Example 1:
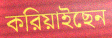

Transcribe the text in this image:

করিয়াইছেন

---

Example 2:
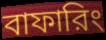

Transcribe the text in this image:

বাফারিং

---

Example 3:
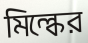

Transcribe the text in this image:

মিল্কের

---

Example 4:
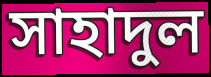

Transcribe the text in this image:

সাহাদুল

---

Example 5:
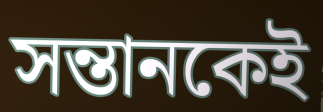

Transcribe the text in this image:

সন্তানকেই